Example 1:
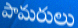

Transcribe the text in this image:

పామరులు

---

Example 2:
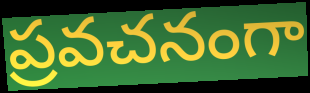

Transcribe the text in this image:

ప్రవచనంగా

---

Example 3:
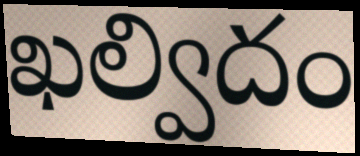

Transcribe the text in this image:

ఖల్విదం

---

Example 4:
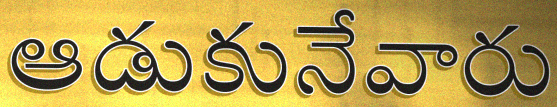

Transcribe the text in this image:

ఆడుకునేవారు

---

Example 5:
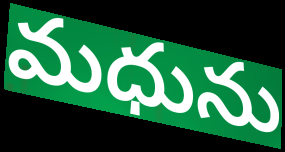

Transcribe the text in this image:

మధును